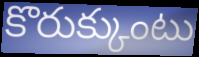
కొరుక్కుంటు